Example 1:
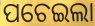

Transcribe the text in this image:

ପଚେଇଲା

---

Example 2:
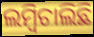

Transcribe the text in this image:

ଲମ୍ବିଚାଲିଛି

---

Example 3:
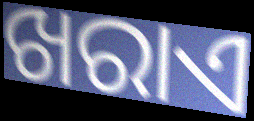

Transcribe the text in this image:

ଖରାଏ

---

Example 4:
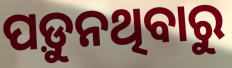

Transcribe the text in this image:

ପଡ଼ୁନଥିବାରୁ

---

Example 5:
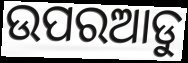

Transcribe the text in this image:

ଉପରଆଡୁ